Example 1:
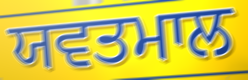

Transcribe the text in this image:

ਯਵਤਮਾਲ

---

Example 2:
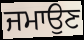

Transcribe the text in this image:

ਜਮਾਉਣ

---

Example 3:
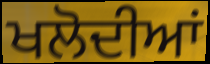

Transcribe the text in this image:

ਖਲੋਦੀਆਂ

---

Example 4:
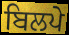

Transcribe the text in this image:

ਬਿਲਪੇ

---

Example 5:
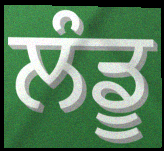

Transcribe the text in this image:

ਲੰਡੂ